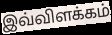
இவ்விளக்கம்